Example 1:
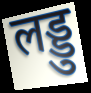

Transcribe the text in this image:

लड्डु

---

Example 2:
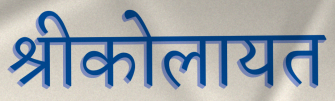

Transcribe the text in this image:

श्रीकोलायत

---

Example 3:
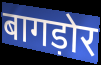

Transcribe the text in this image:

बागड़ोर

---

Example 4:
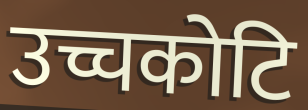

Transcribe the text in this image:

उच्चकोटि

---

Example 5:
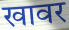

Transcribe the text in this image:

खावर